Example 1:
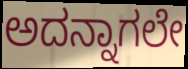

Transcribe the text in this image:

ಅದನ್ನಾಗಲೇ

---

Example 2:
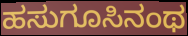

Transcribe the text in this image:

ಹಸುಗೂಸಿನಂಥ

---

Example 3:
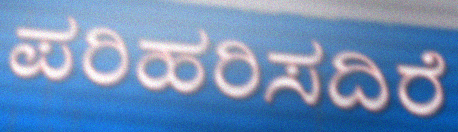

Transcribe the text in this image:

ಪರಿಹರಿಸದಿರೆ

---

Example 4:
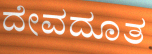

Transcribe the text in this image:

ದೇವದೂತ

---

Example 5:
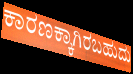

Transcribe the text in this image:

ಕಾರಣಕ್ಕಾಗಿರಬಹುದು